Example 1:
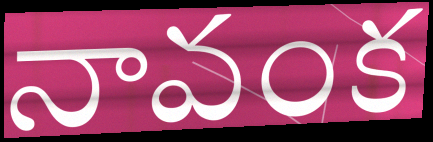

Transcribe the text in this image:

నావంక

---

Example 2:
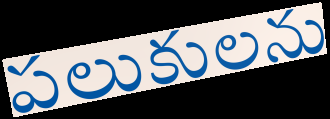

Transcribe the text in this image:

పలుకులను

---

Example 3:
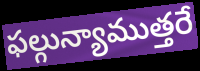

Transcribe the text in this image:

ఫల్గున్యాముత్తరే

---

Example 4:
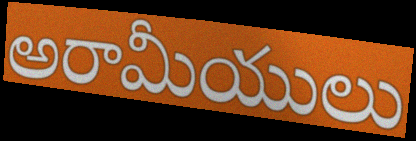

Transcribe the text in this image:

అరామీయులు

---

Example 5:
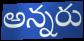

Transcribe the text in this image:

అన్నరు